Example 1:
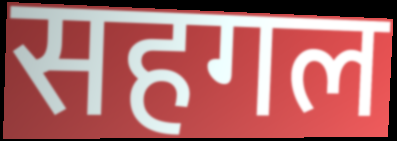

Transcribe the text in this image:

सहगल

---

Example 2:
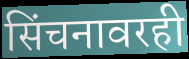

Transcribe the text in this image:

सिंचनावरही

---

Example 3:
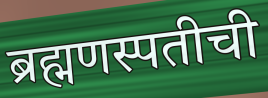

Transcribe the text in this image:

ब्रह्मणस्पतीची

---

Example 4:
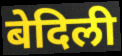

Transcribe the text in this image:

बेदिली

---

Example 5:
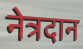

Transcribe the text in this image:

नेत्रदान